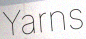
Yarns